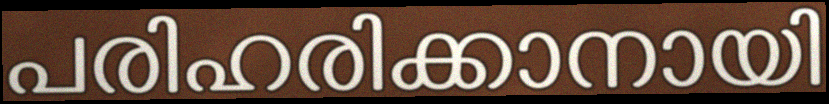
പരിഹരിക്കാനായി